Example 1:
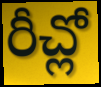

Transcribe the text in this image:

రీచ్లో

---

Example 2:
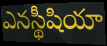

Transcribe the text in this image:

ఎనస్థీషియా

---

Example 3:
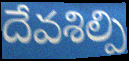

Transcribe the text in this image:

దేవశిల్పి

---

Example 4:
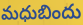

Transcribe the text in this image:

మధుబిందు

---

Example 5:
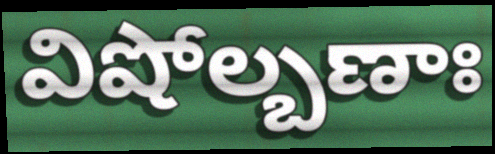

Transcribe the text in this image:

విషోల్బణాః